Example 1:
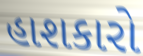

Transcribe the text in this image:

હાશકારો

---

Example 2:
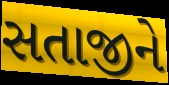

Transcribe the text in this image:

સતાજીને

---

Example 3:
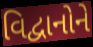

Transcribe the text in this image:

વિદ્વાનોને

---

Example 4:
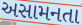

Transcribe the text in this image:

અસામનતા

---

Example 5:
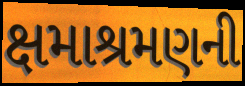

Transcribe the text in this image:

ક્ષમાશ્રમણની